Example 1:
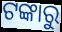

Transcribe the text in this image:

ଟଙ୍କାରୁ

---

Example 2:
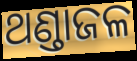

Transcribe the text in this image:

ଥଣ୍ଡାଜଳ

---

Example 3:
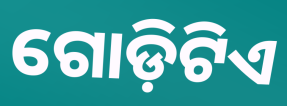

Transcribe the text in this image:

ଗୋଡ଼ିଟିଏ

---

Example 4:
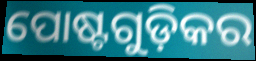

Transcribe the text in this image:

ପୋଷ୍ଟଗୁଡ଼ିକର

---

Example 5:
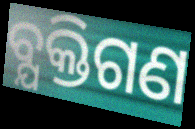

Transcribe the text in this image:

ବ୍ଯକ୍ତିଗଣ